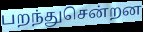
பறந்துசென்றன